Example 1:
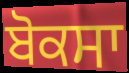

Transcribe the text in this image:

ਬੋਕਸਾ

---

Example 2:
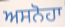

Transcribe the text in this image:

ਅਸਨੋਹਾ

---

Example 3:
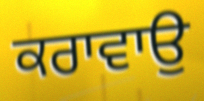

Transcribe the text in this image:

ਕਰਾਵਾਉ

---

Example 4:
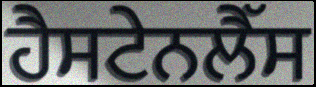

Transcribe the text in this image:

ਹੈਸਟੇਨਲੈੱਸ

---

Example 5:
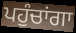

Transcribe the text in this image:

ਪਹੁੰਚਾਂਗਾ